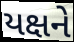
યક્ષને